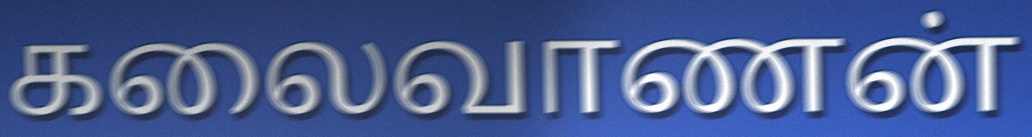
கலைவாணன்